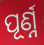
ପୂର୍ଣ୍ନ